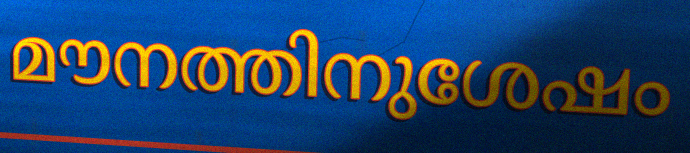
മൗനത്തിനുശേഷം